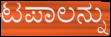
ಟಪಾಲನ್ನು